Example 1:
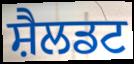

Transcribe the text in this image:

ਸ਼ੈਲਡਟ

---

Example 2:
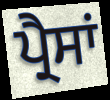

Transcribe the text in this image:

ਪ੍ਰੈਸਾਂ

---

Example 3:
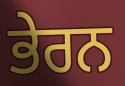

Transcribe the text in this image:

ਭੇਰਨ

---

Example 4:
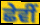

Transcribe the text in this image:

ਛੇਵੀਂ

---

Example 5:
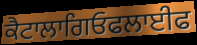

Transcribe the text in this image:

ਕੈਟਾਲਾਗਿਓਫਲਾਈਫ